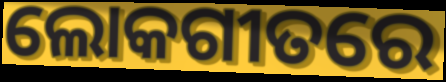
ଲୋକଗୀତରେ